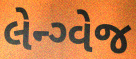
લેન્ગ્વેજ